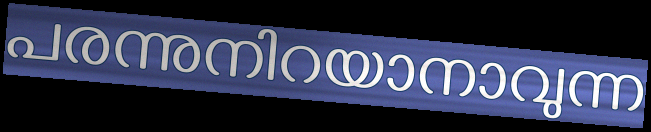
പരന്നുനിറയാനാവുന്ന